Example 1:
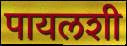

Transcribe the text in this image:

पायलशी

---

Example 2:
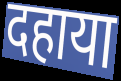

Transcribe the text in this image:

दहाया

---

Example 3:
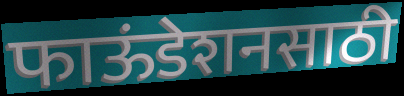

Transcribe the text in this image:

फाऊंडेशनसाठी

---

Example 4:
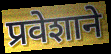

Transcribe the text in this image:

प्रवेशाने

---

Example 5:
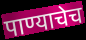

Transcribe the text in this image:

पाण्याचेच